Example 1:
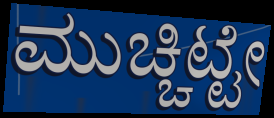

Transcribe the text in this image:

ಮುಚ್ಚಿಟ್ಟೇ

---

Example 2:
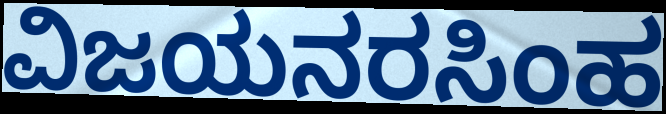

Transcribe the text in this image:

ವಿಜಯನರಸಿಂಹ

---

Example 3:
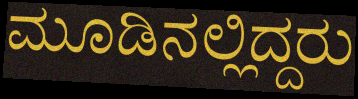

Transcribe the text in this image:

ಮೂಡಿನಲ್ಲಿದ್ದರು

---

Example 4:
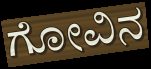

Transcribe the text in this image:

ಗೋವಿನ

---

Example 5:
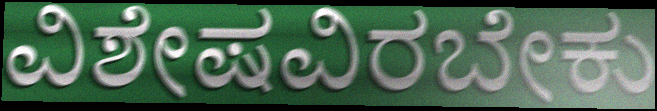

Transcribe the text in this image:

ವಿಶೇಷವಿರಬೇಕು